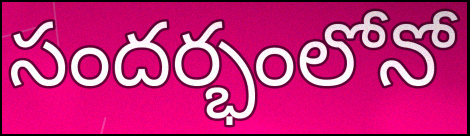
సందర్భంలోనో